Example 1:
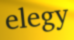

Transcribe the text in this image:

elegy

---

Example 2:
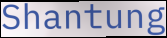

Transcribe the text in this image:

Shantung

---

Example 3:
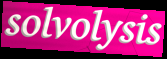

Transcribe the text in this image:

solvolysis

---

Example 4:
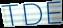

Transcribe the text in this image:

TDE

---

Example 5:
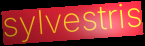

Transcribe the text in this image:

sylvestris